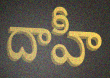
దాహీ